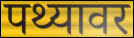
पथ्यावर